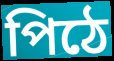
পিঠে